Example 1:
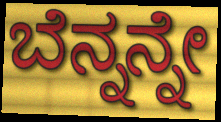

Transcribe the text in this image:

ಬೆನ್ನನ್ನೇ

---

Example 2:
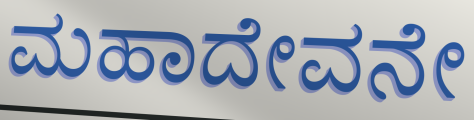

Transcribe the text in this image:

ಮಹಾದೇವನೇ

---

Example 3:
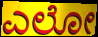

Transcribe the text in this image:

ಎಲೋ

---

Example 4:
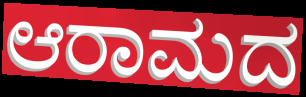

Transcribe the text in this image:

ಆರಾಮದ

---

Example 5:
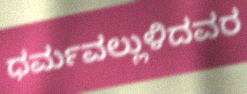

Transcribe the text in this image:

ಧರ್ಮವಲ್ಲುಳಿದವರ